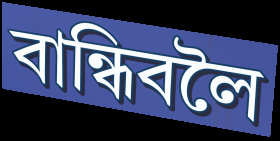
বান্ধিবলৈ